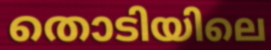
തൊടിയിലെ